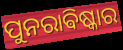
ପୁନରାଵିଷ୍କାର